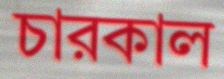
চারকাল